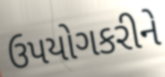
ઉપયોગકરીને